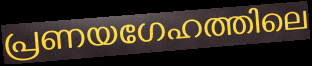
പ്രണയഗേഹത്തിലെ